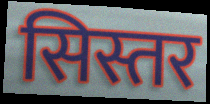
सिस्तर